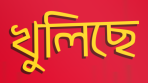
খুলিছে